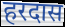
हरदास